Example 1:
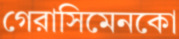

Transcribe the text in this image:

গেরাসিমেনকো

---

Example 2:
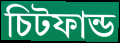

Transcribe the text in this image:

চিটফান্ড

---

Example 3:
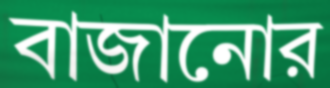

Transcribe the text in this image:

বাজানোর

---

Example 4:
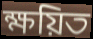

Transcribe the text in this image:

ক্ষয়িত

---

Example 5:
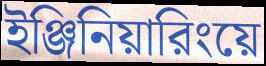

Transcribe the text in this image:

ইঞ্জিনিয়ারিংয়ে